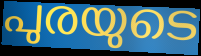
പുരയുടെ